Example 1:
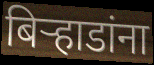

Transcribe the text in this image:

बिऱ्हाडांना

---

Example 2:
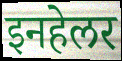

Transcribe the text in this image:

इनहेलर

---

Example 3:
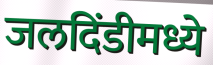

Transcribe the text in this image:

जलदिंडीमध्ये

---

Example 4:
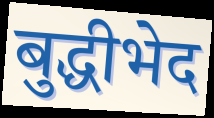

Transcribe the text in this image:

बुद्धीभेद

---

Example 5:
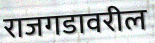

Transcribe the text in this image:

राजगडावरील